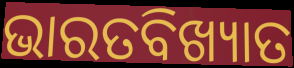
ଭାରତବିଖ୍ୟାତ